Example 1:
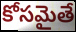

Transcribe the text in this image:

కోసమైతే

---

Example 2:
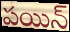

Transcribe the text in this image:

పయిన్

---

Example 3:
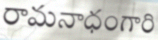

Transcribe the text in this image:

రామనాధంగారి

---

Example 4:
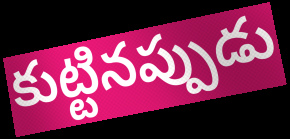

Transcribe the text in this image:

కుట్టినప్పుడు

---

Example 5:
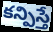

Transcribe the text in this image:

కన్పిస్తే